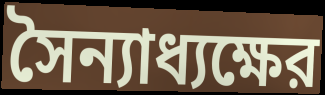
সৈন্যাধ্যক্ষের